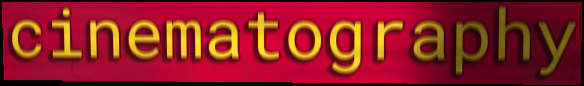
cinematography